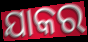
ଯାକର